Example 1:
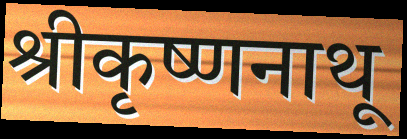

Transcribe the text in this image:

श्रीकृष्णनाथू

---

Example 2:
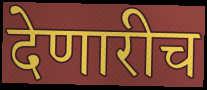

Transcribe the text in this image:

देणारीच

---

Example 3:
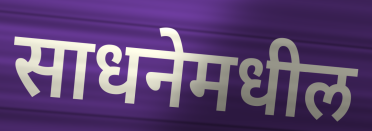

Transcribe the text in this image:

साधनेमधील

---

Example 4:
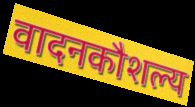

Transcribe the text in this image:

वादनकौशल्य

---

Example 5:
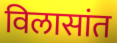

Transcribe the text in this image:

विलासांत